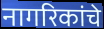
नागरिकांचे